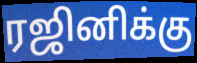
ரஜினிக்கு